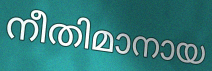
നീതിമാനായ